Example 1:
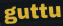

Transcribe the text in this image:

guttu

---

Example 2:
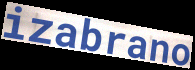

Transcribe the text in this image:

izabrano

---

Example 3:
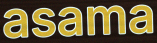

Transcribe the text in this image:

asama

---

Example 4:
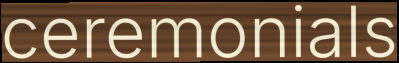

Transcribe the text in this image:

ceremonials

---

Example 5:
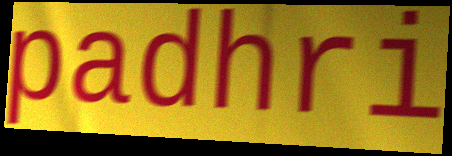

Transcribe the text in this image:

padhri